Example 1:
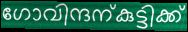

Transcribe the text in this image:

ഗോവിന്ദന്കുട്ടിക്ക്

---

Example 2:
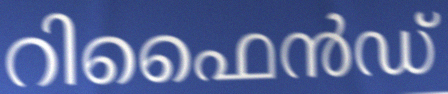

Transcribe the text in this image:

റിഫൈൻഡ്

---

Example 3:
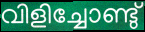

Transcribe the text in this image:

വിളിച്ചോണ്ടു്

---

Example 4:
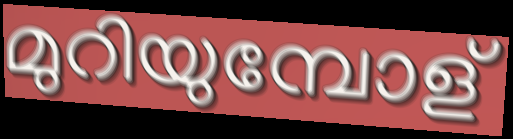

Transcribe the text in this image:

മുറിയുമ്പോള്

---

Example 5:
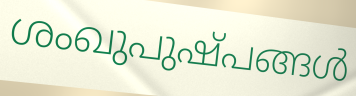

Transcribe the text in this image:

ശംഖുപുഷ്പങ്ങൾ